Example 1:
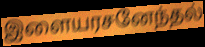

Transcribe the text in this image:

இளையரசனேந்தல்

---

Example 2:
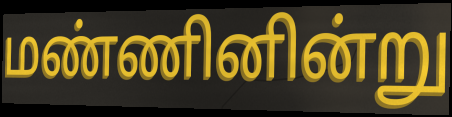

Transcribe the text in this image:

மண்ணினின்று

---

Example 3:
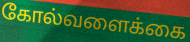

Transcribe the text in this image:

கோல்வளைக்கை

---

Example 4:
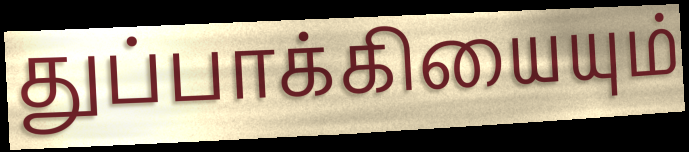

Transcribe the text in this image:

துப்பாக்கியையும்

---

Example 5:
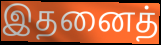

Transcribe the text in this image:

இதனைத்